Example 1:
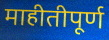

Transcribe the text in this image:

माहीतीपूर्ण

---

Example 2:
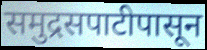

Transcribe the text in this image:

समुद्रसपाटीपासून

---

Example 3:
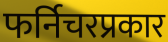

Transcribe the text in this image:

फर्निचरप्रकार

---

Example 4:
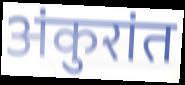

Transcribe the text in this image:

अंकुरांत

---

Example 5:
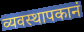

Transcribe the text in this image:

व्यवस्थापकानं